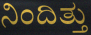
ನಿಂದಿತ್ತು